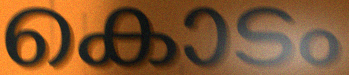
കൊടം